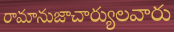
రామానుజాచార్యులవారు